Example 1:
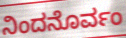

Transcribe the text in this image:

ನಿಂದನೊರ್ವಂ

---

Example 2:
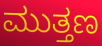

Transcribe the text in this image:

ಮುತ್ತಣ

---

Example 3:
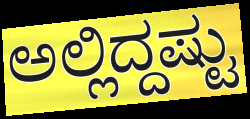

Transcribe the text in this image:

ಅಲ್ಲಿದ್ದಷ್ಟು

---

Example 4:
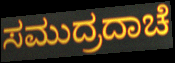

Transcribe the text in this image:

ಸಮುದ್ರದಾಚೆ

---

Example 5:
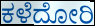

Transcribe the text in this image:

ಕಳೆದೋರಿ